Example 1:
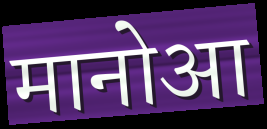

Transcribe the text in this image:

मानोआ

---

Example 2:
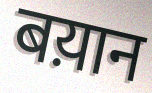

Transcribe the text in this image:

बय़ान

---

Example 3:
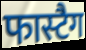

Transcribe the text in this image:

फास्‍टैग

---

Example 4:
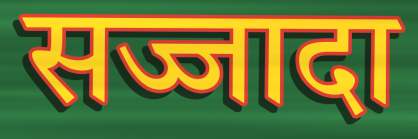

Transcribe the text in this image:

सज्जादा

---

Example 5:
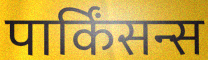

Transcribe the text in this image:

पार्किंसन्स